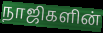
நாஜிகளின்